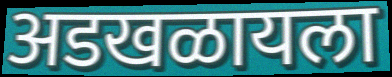
अडखळायला